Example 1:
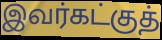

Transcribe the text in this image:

இவர்கட்குத்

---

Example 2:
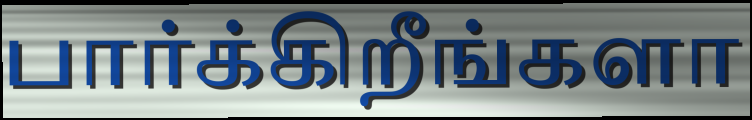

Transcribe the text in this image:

பார்க்கிறீங்களா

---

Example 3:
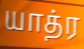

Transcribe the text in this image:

யாத்ர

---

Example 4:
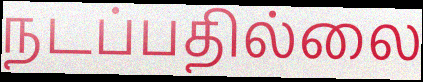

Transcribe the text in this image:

நடப்பதில்லை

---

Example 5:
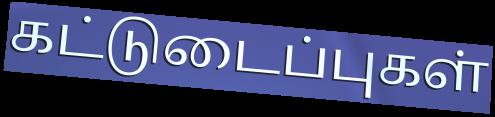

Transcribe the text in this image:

கட்டுடைப்புகள்